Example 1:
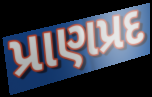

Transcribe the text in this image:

પ્રાણપ્રદ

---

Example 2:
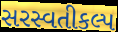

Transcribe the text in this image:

સરસ્વતીકલ્પ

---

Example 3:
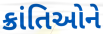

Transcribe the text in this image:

ક્રાંતિઓને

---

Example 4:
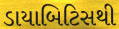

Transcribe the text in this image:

ડાયાબિટિસથી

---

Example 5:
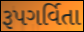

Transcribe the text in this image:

રૂપગર્વિતા